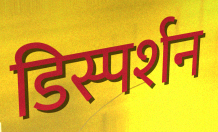
डिस्पर्शन